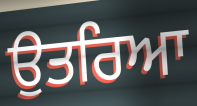
ਉਤਰਿਆ